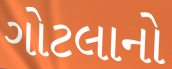
ગોટલાનો